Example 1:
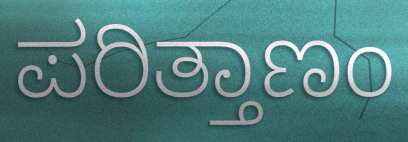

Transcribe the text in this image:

ಪರಿತ್ತಾಣಂ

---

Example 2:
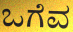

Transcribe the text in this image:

ಒಗೆವ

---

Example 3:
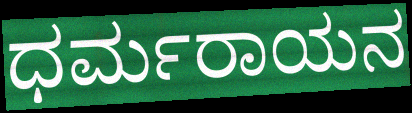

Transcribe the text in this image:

ಧರ್ಮರಾಯನ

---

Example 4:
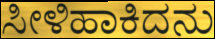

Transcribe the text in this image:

ಸೀಳಿಹಾಕಿದನು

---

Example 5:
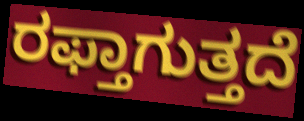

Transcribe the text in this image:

ರಫ್ತಾಗುತ್ತದೆ